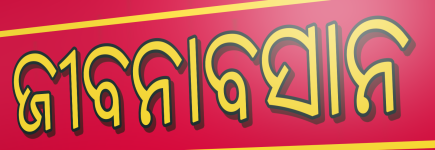
ଜୀବନାବସାନ